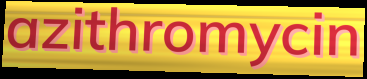
azithromycin